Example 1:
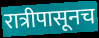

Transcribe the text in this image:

रात्रीपासूनच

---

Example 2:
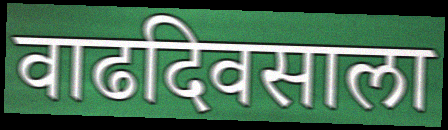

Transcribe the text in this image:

वाढदिवसाला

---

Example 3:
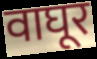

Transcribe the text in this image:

वाघूर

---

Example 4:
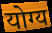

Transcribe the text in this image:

योग्य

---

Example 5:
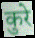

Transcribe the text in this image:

कुरे